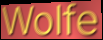
Wolfe